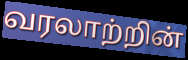
வரலாற்றின்